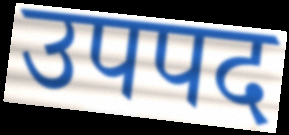
उपपद